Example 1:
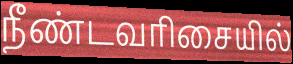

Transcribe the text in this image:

நீண்டவரிசையில்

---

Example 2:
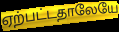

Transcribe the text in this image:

ஏற்பட்டதாலேயே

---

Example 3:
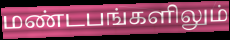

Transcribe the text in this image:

மண்டபங்களிலும்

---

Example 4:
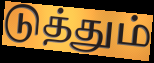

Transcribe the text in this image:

டுத்தும்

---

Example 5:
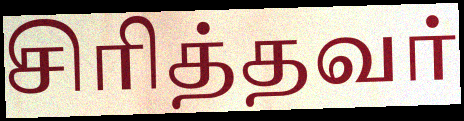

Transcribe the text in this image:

சிரித்தவர்